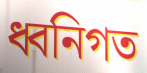
ধ্বনিগত